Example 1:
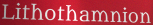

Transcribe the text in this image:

Lithothamnion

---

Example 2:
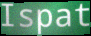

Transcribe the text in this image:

Ispat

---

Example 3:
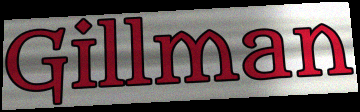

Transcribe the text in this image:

Gillman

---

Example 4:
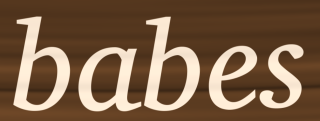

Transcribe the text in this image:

babes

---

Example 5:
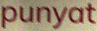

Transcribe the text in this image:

punyat